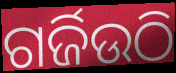
ଗର୍ଜିଉଠି